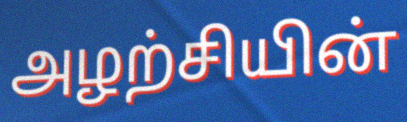
அழற்சியின்